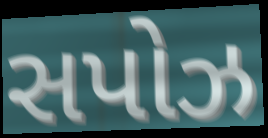
સપોઝ